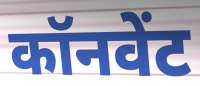
कॉनवेंट